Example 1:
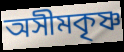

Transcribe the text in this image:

অসীমকৃষ্ণ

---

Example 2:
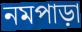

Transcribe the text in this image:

নমপাড়া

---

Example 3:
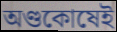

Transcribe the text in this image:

অণ্ডকোষেই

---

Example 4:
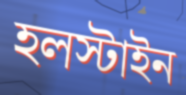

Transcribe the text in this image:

হলস্টাইন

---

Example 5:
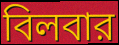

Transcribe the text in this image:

বিলবার